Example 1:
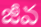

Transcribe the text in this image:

జీవ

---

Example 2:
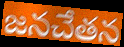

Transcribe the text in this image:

జనచేతన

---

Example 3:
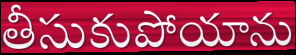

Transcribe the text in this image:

తీసుకుపోయాను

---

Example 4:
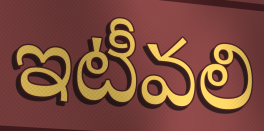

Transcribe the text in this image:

ఇటీవలి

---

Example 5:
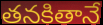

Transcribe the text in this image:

తనకితానే